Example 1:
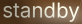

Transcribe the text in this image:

standby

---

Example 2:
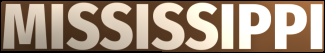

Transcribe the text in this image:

MISSISSIPPI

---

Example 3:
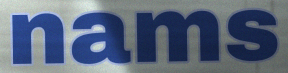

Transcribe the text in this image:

nams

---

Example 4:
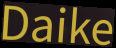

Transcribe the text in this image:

Daike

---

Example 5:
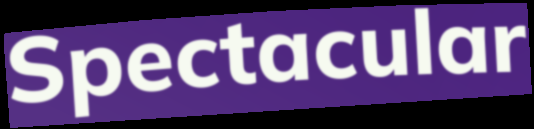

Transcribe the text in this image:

Spectacular